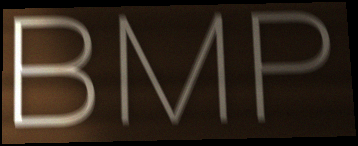
BMP